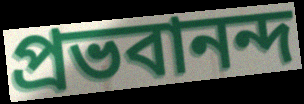
প্রভবানন্দ